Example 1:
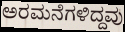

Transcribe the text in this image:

ಅರಮನೆಗಳಿದ್ದವು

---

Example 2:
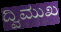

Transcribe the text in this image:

ದ್ವಿಮುಖ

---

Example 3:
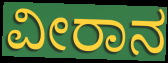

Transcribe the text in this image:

ವೀರಾನ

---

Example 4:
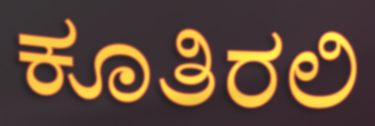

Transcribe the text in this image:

ಕೂತಿರಲಿ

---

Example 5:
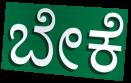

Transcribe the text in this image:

ಬೇಕೆ